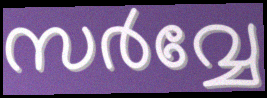
സർവ്വേ